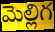
మెల్లిగ